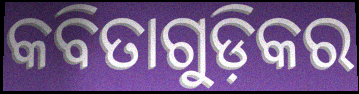
କବିତାଗୁଡ଼ିକର